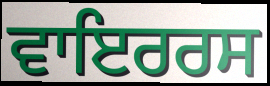
ਵਾਇਰਰਸ